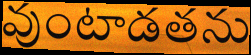
వుంటాడతను